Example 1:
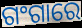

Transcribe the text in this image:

ଗଂଗାରେ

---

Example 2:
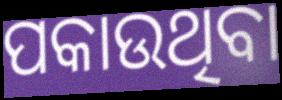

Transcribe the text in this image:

ପକାଉଥିବା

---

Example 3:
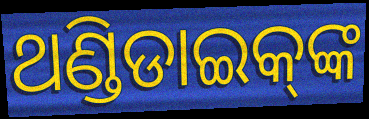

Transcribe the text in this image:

ଥଣ୍ଡିଡାଇକ୍‌ଙ୍କ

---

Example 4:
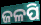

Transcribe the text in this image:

ଜଳପି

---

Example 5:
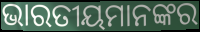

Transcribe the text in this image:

ଭାରତୀୟମାନଙ୍କର